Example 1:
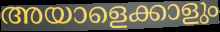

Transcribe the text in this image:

അയാളെക്കാളും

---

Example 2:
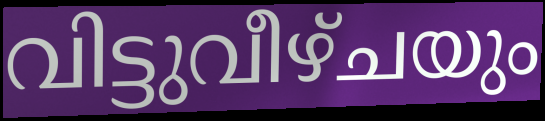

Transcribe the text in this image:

വിട്ടുവീഴ്ചയും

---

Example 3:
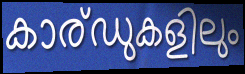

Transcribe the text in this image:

കാര്ഡുകളിലും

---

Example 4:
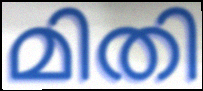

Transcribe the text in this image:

മിതി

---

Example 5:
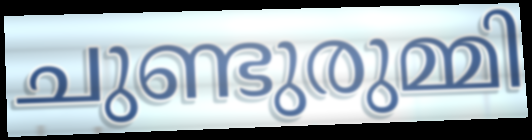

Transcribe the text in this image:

ചുണ്ടുരുമ്മി